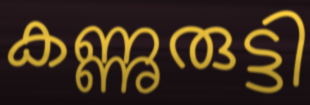
കണ്ണുരുട്ടി